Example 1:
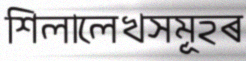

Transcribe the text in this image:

শিলালেখসমূহৰ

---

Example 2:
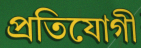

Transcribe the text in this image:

প্ৰতিযোগী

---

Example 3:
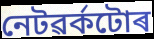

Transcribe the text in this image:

নেটৱৰ্কটোৰ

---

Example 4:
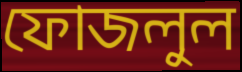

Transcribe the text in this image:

ফোজলুল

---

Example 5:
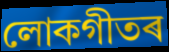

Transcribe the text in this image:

লোকগীতৰ